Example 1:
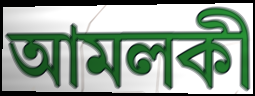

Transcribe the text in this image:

আমলকী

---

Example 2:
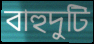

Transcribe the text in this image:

বাহুদুটি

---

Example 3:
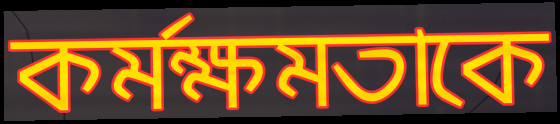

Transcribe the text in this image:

কর্মক্ষমতাকে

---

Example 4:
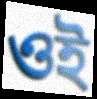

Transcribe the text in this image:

ওই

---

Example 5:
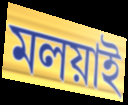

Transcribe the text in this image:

মলয়াই